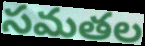
సమతల